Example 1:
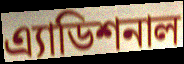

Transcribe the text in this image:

এ্যাডিশনাল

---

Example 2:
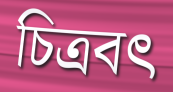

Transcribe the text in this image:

চিত্রবৎ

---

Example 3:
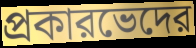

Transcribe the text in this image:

প্রকারভেদের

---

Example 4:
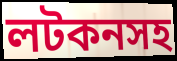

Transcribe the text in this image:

লটকনসহ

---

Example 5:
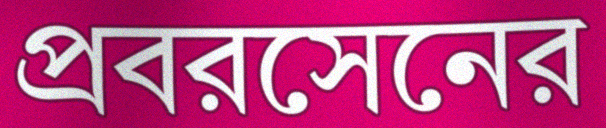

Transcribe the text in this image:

প্রবরসেনের